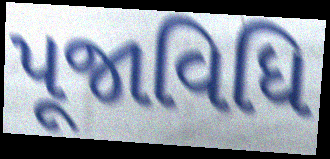
પૂજાવિધિ